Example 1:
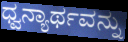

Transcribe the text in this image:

ಧ್ವನ್ಯಾರ್ಥವನ್ನು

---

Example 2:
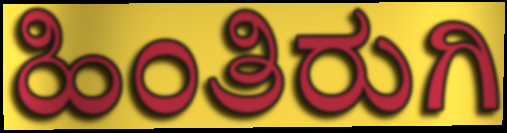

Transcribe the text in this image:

ಹಿಂತಿರುಗಿ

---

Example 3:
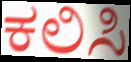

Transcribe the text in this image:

ಕಲಿಸಿ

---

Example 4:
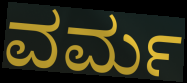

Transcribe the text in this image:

ವರ್ಮ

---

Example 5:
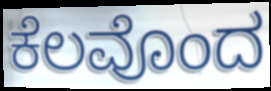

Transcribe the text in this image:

ಕೆಲವೊಂದ